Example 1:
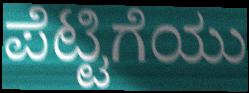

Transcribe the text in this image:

ಪೆಟ್ಟಿಗೆಯು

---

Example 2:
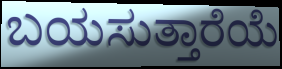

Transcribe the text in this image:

ಬಯಸುತ್ತಾರೆಯೆ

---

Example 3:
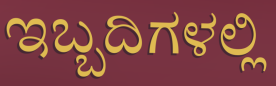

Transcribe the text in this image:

ಇಬ್ಬದಿಗಳಲ್ಲಿ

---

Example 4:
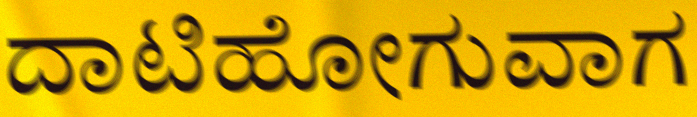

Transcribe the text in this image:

ದಾಟಿಹೋಗುವಾಗ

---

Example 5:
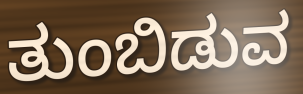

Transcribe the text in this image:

ತುಂಬಿಡುವ